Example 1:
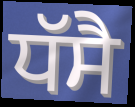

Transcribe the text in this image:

ਧੱਸੈ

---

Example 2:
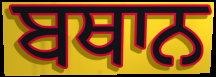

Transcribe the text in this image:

ਬਥਾਨ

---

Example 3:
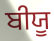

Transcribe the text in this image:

ਬੀਯੂ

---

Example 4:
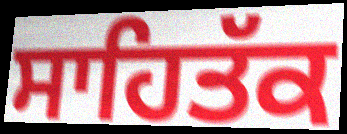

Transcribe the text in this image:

ਸਾਹਿਤੱਕ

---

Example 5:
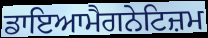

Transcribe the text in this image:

ਡਾਇਆਮੈਗਨੇਟਿਜ਼ਮ